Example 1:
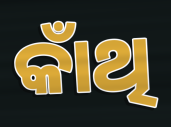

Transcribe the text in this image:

କାଁଥି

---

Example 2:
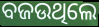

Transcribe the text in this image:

ବଜଉଥିଲେ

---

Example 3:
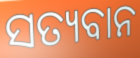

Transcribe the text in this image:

ସତ୍ୟବାନ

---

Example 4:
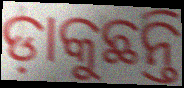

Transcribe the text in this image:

ଡ଼ାକୁଛନ୍ତି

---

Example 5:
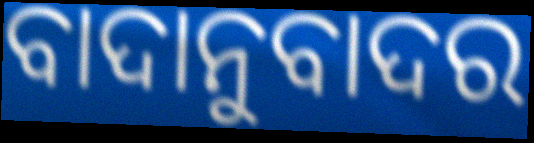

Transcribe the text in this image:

ବାଦାନୁବାଦର